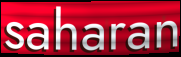
saharan